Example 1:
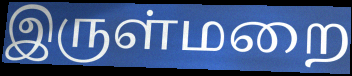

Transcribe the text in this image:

இருள்மறை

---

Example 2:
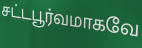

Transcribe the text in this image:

சட்டபூர்வமாகவே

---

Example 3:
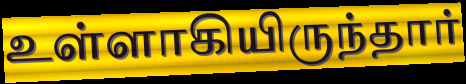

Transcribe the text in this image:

உள்ளாகியிருந்தார்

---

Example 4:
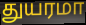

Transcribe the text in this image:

துயரமா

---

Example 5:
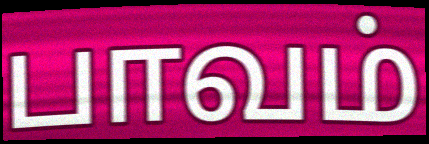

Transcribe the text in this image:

பாவம்